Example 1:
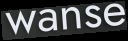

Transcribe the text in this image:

wanse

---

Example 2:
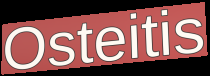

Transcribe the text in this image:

Osteitis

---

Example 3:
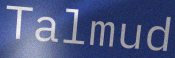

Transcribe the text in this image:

Talmud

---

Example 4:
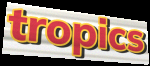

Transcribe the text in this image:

tropics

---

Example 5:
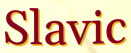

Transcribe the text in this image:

Slavic